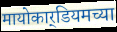
मायोकार्डियमच्या